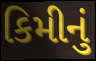
કિમીનું